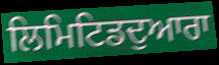
ਲਿਮਿਟਿਡਦੁਆਰਾ